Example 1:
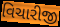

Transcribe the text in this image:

વિચારીજી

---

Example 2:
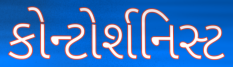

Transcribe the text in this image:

કોન્ટોર્શનિસ્ટ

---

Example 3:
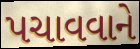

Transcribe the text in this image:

પચાવવાને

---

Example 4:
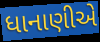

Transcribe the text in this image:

ધાનાણીએ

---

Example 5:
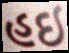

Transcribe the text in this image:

હઇ